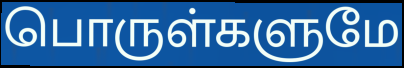
பொருள்களுமே